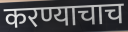
करण्याचाच